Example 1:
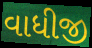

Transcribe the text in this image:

વાધીજી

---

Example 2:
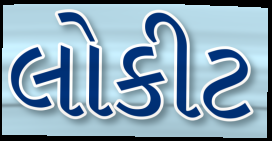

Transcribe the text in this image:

લોકીટ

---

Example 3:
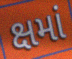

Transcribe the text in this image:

ક્ષમાં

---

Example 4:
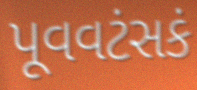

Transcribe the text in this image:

પૂવવટંસકં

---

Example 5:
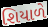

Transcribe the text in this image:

શિયાળે